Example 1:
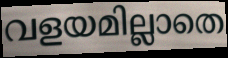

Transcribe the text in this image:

വളയമില്ലാതെ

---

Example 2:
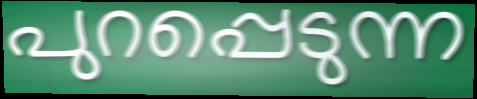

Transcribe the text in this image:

പുറപ്പെടുന്ന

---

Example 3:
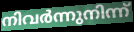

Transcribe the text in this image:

നിവർന്നുനിന്ന്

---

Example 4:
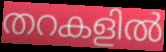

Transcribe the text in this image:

തറകളിൽ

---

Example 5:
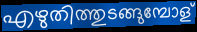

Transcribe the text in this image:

എഴുതിത്തുടങ്ങുമ്പോള്